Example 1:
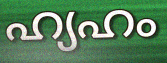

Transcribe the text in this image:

ഹ്യഹം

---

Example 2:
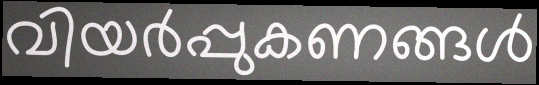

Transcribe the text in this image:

വിയർപ്പുകണങ്ങൾ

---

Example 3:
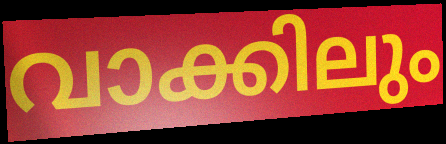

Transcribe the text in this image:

വാക്കിലും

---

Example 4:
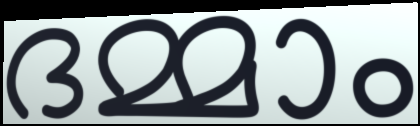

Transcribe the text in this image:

ദമ്മാം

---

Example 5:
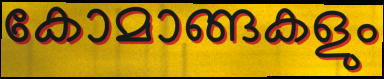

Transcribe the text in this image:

കോമാങ്ങകളും